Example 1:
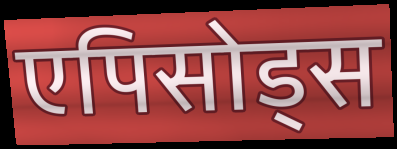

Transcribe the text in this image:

एपिसोड्स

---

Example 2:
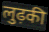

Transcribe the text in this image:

लुढ़की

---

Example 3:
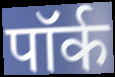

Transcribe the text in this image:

पॉर्क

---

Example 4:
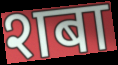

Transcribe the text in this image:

शबा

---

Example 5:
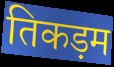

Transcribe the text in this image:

तिकड़म